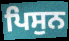
ਪਿਸੁਨ